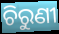
ଚିରୁଣୀ